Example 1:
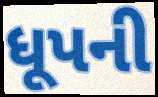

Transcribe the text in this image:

ધૂપની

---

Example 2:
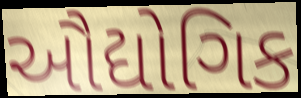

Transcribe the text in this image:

ઔદ્યોગિક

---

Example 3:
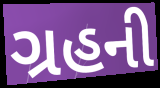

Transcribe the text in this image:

ગ્રહની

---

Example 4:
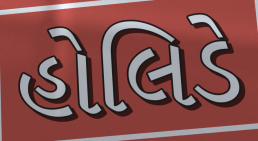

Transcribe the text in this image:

હોલિડે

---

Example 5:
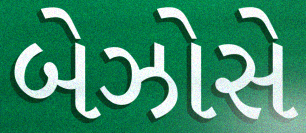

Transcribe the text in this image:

બેઝોસે